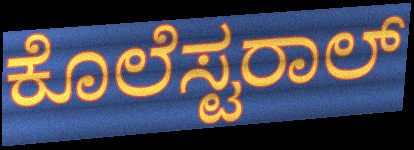
ಕೊಲೆಸ್ಟರಾಲ್